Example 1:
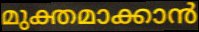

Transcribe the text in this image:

മുക്തമാക്കാൻ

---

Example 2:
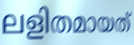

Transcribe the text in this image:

ലളിതമായത്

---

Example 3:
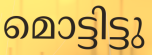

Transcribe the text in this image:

മൊട്ടിട്ടു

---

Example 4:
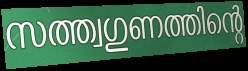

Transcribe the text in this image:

സത്ത്വഗുണത്തിന്റെ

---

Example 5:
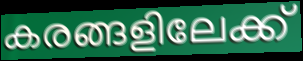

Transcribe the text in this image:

കരങ്ങളിലേക്ക്